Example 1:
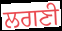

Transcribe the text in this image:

ਲਗਣੀ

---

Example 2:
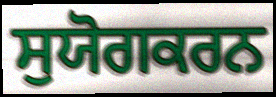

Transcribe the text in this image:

ਸੁਯੋਗਕਰਨ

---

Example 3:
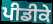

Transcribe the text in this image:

ਪੀਡੀਕੇ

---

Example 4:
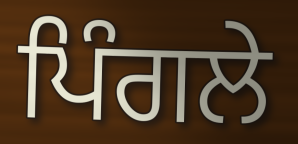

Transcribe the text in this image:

ਪਿੰਗਲੇ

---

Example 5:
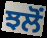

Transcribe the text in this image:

ਝਲੋਂ